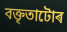
বক্তৃতাটোৰ